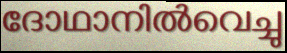
ദോഥാനിൽവെച്ചു